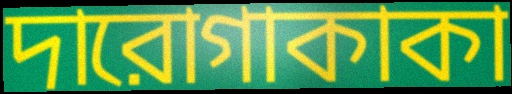
দারোগাকাকা